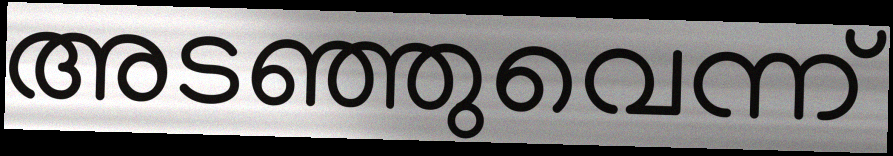
അടഞ്ഞുവെന്ന്